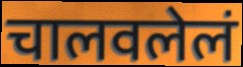
चालवलेलं